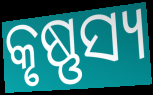
କୃଷ୍ଣସ୍ୟ